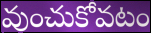
వుంచుకోవటం